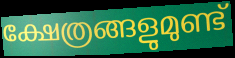
ക്ഷേത്രങ്ങളുമുണ്ട്